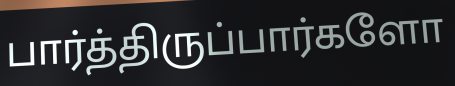
பார்த்திருப்பார்களோ